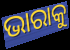
ଭାରାକୁ